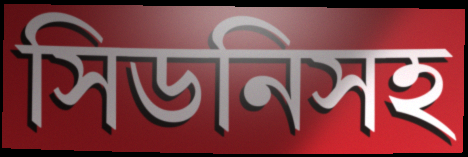
সিডনিসহ